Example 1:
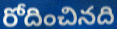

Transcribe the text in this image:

రోదించినది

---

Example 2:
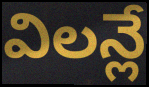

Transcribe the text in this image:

విలన్లే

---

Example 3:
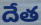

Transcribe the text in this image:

దేత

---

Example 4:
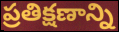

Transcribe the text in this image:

ప్రతిక్షణాన్ని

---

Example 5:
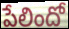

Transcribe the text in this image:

పేలిందో